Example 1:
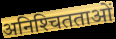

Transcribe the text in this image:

अनिश्‍चितताओं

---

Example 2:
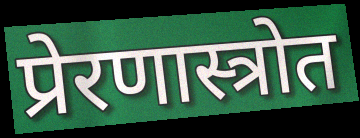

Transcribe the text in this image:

प्रेरणास्त्रोत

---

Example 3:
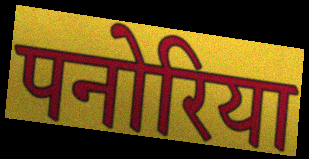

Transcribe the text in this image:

पनोरिया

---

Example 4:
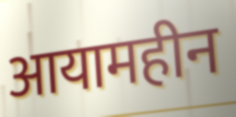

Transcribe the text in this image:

आयामहीन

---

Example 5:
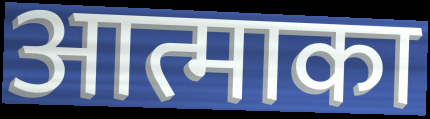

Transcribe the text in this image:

आत्माका